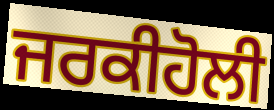
ਜਰਕੀਹੋਲੀ